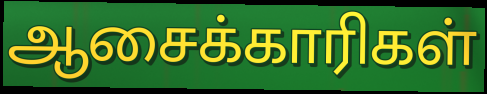
ஆசைக்காரிகள்